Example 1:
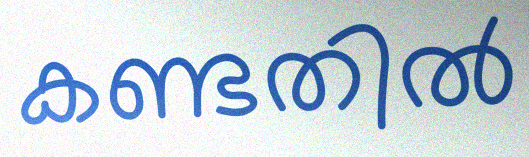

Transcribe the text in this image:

കണ്ടതിൽ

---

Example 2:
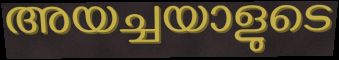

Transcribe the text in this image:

അയച്ചയാളുടെ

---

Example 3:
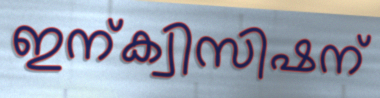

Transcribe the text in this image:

ഇന്ക്വിസിഷന്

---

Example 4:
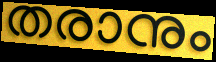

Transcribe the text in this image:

തരാനും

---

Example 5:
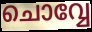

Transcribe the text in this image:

ചൊവ്വേ